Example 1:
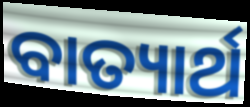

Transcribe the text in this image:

ବାତ୍ୟାର୍ଥ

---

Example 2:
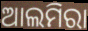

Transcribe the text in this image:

ଆଲମିରା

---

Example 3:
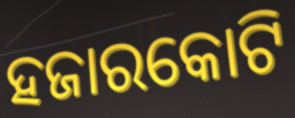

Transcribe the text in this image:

ହଜାରକୋଟି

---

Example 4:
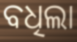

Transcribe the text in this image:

ବଧିଲା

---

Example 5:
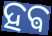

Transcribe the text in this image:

ହଵ